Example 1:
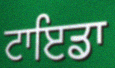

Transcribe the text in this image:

ਟਾਇਡਾ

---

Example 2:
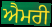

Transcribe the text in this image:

ਐਮਰੀ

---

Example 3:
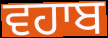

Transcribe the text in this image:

ਵਹਾਬ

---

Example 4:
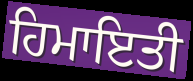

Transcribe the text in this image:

ਹਿਮਾਇਤੀ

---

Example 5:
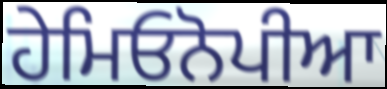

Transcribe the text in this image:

ਹੇਮਿਓਨੋਪੀਆ